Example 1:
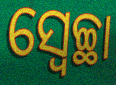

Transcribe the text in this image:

ସ୍ବେଚ୍ଛା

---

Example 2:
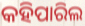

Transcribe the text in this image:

କହିପାରିଲ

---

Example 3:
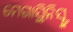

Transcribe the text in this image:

ମେଗାସ୍ଥିନିସ୍ଙ୍କ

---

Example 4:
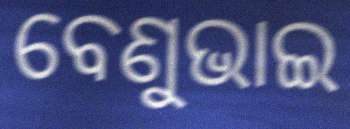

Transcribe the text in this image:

ବେଣୁଭାଇ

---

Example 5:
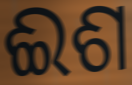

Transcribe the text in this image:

ଈଶ